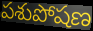
పశుపోషణ